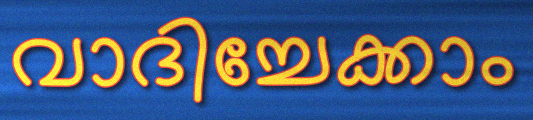
വാദിച്ചേക്കാം